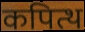
कपित्थ